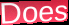
Does